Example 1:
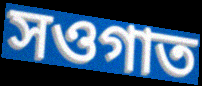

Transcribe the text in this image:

সওগাত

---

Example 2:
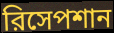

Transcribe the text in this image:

রিসেপশান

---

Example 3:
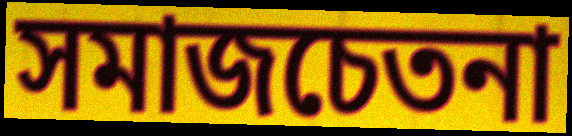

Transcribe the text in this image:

সমাজচেতনা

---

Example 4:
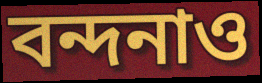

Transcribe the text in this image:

বন্দনাও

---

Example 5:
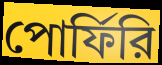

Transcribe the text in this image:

পোর্ফিরি